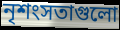
নৃশংসতাগুলো